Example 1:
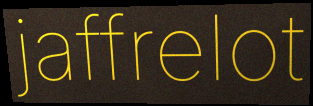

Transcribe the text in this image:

jaffrelot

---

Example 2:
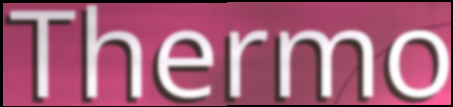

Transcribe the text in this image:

Thermo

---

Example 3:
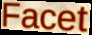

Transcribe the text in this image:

Facet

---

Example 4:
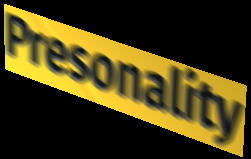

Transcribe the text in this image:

Presonality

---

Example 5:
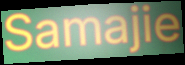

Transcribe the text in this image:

Samajie